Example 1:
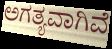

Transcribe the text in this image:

ಅಗತ್ಯವಾಗಿವೆ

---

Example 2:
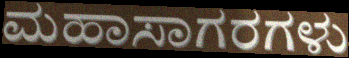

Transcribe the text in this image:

ಮಹಾಸಾಗರಗಳು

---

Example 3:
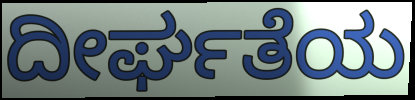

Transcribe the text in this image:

ದೀರ್ಘತೆಯ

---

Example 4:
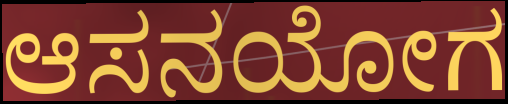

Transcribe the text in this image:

ಆಸನಯೋಗ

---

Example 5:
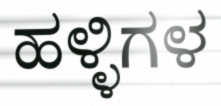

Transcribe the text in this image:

ಹಳ್ಳಿಗಳ